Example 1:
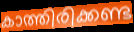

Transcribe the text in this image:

കാത്തിരിക്കണ്ട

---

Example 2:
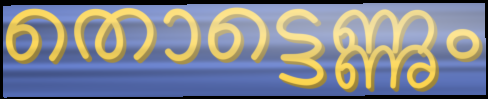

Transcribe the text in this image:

തൊട്ടെണ്ണും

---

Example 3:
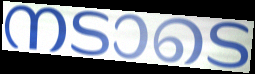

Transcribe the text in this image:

നടാടെ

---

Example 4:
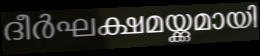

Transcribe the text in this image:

ദീർഘക്ഷമയ്ക്കുമായി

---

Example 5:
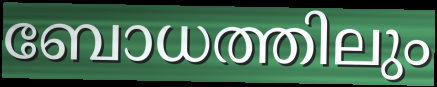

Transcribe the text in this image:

ബോധത്തിലും